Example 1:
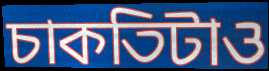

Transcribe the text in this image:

চাকতিটাও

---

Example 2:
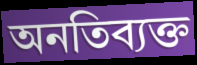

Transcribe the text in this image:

অনতিব্যক্ত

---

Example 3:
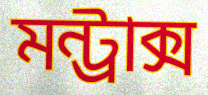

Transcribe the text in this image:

মন্ট্রাক্স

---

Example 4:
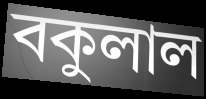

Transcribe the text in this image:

বকুলাল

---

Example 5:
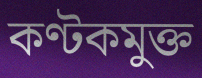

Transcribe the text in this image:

কণ্টকমুক্ত